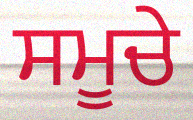
ਸਮੂਚੇ